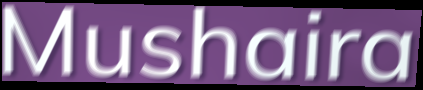
Mushaira